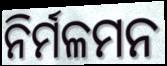
ନିର୍ମଳମନ